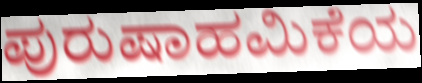
ಪುರುಷಾಹಮಿಕೆಯ